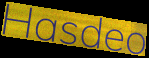
Hasdeo